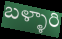
బళ్ళారి